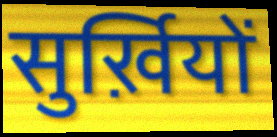
सुर्ख़ियों